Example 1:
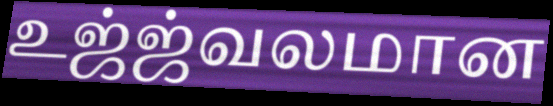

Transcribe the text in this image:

உஜ்ஜ்வலமான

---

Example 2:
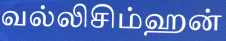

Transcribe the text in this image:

வல்லிசிம்ஹன்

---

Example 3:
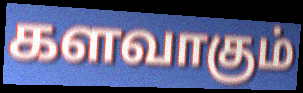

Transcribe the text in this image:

களவாகும்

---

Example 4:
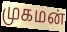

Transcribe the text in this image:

முகமன்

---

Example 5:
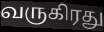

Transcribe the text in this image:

வருகிரது